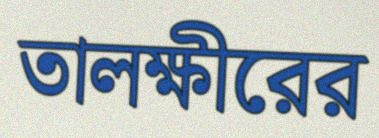
তালক্ষীরের